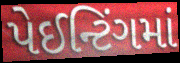
પેઈન્ટિંગમાં